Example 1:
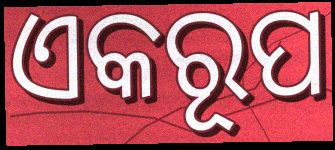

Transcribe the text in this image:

ଏକରୂପ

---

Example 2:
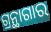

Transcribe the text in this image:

ଗ୍ରନ୍ଥାଗାର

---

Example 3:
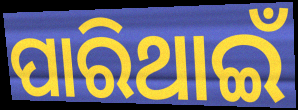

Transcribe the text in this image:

ପାରିଥାଇଁ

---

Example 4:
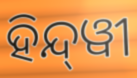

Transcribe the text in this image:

ହିନ୍ଦ୍‍ୱୀ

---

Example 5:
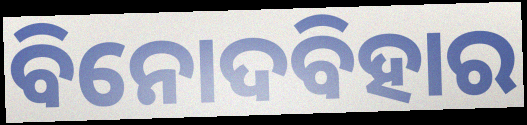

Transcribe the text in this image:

ବିନୋଦବିହାର